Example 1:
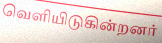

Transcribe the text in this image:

வெளியிடுகின்றனர்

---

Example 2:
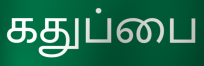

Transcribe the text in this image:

கதுப்பை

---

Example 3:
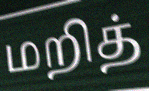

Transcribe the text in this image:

மறித்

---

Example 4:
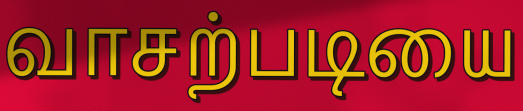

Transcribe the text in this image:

வாசற்படியை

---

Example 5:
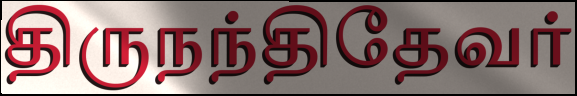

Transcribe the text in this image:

திருநந்திதேவர்